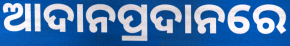
ଆଦାନପ୍ରଦାନରେ